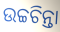
ଉଚ୍ଚଚିନ୍ତା